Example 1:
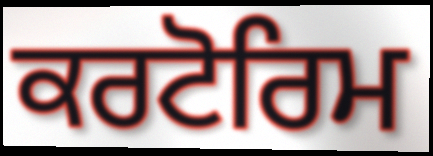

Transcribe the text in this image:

ਕਰਟੋਰਿਮ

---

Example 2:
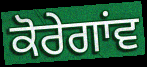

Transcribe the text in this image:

ਕੋਰੇਗਾਂਵ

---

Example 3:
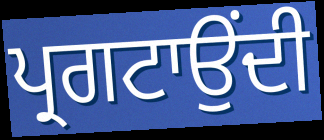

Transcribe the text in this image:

ਪ੍ਰਗਟਾਉਂਦੀ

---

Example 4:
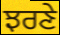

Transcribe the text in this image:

ਝਰਣੇ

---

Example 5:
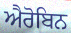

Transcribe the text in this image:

ਐਰੋਬਿਨ